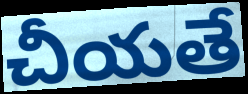
చీయతే